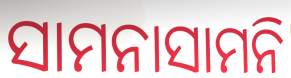
ସାମନାସାମନି